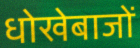
धोखेबाजों